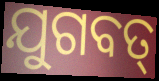
ଯୁଗବତ୍